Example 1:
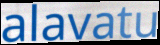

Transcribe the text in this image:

alavatu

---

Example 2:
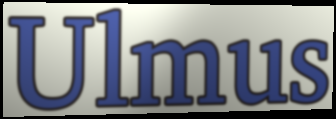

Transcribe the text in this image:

Ulmus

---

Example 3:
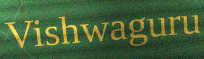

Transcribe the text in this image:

Vishwaguru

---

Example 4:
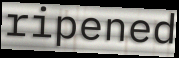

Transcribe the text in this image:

ripened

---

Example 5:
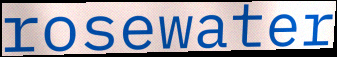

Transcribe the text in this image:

rosewater